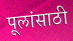
पूलांसाठी